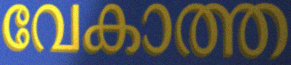
വേകാത്ത